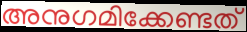
അനുഗമിക്കേണ്ടത്